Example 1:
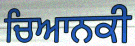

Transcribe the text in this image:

ਚਿਆਨਕੀ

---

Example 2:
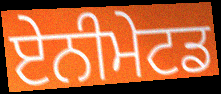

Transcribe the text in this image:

ਏਨੀਮੇਟਡ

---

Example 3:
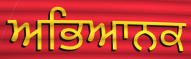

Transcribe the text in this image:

ਅਭਿਆਨਕ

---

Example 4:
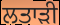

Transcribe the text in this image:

ਲਤਾੜੀ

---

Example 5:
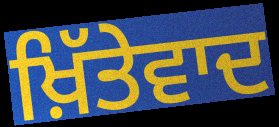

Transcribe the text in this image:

ਖ਼ਿੱਤੇਵਾਦ